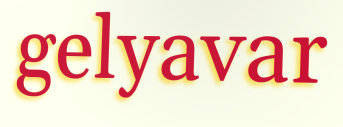
gelyavar